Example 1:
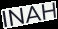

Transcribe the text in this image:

INAH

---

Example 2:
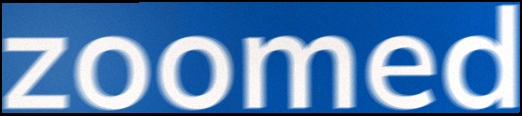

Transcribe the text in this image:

zoomed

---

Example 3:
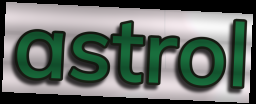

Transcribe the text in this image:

astrol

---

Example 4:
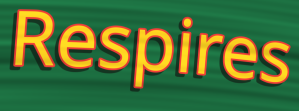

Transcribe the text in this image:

Respires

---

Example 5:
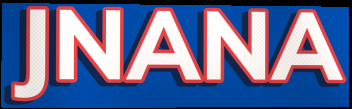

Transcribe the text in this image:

JNANA